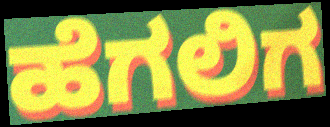
ಹೆಗಲಿಗ